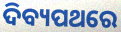
ଦିବ୍ୟପଥରେ